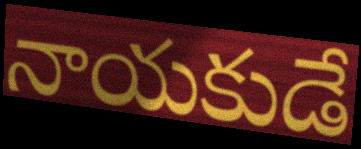
నాయకుడే